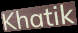
Khatik